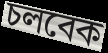
চলবেক